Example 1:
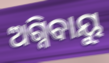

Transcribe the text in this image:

ଅଗ୍ନିବାୟୁ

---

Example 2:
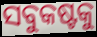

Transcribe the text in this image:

ସବୁକଷ୍ଟକୁ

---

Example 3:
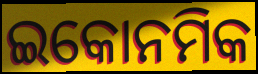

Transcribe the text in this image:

ଇକୋନମିକ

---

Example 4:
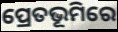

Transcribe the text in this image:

ପ୍ରେତଭୂମିରେ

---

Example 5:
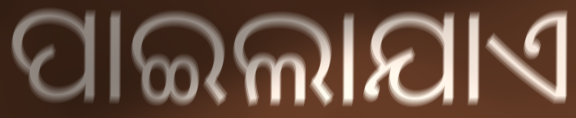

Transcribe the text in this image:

ପାଇଲାଯାଏ